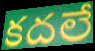
కదలే